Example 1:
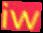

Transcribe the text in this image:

iw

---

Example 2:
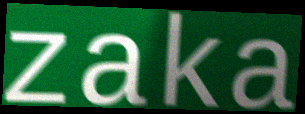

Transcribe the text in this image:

zaka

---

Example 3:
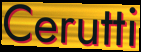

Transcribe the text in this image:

Cerutti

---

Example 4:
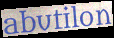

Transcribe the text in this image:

abutilon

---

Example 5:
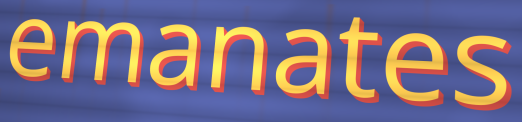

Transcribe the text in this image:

emanates